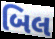
બિલ